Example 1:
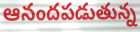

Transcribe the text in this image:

ఆనందపడుతున్న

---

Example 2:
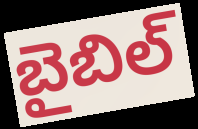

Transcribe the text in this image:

బైబిల్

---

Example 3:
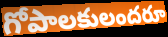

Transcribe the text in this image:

గోపాలకులందరూ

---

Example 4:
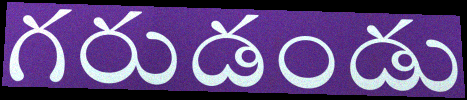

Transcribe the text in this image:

గరుడండు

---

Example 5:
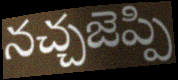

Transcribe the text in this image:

నచ్చజెప్పి